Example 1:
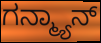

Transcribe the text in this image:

ಗನ್ಮ್ಯಾನ್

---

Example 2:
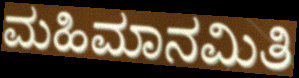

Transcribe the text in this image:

ಮಹಿಮಾನಮಿತಿ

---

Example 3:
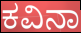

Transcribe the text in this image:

ಕವಿನಾ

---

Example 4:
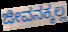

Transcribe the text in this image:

ಜೀವನಕ್ಕಲ್ಲ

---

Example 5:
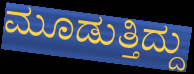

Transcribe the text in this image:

ಮೂಡುತ್ತಿದ್ದು